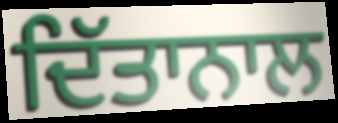
ਦਿੱਤਾਨਾਲ